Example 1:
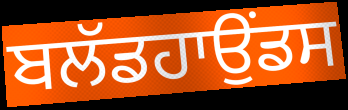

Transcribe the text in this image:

ਬਲੱਡਹਾਉਂਡਸ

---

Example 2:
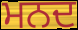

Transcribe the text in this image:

ਮਨਦ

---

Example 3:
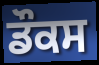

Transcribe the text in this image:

ਡੌਕਸ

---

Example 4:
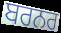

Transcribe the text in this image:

ਬਰਨਰ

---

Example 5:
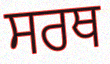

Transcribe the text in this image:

ਸਰਥ